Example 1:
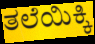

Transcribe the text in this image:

ತಲೆಯಿಕ್ಕಿ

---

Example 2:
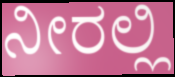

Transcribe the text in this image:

ನೀರಲ್ಲಿ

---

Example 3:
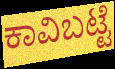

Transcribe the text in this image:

ಕಾವಿಬಟ್ಟೆ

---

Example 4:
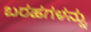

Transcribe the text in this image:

ಬರಹಗಳನ್ನು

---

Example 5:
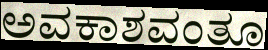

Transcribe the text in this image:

ಅವಕಾಶವಂತೂ